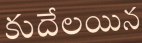
కుదేలయిన